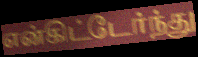
என்கிட்டேர்ந்து